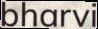
bharvi